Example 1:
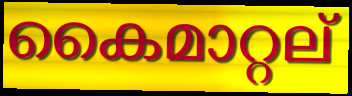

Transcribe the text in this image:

കൈമാറ്റല്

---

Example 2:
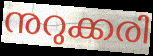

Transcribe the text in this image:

നുറുക്കരി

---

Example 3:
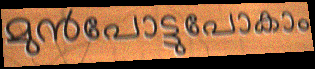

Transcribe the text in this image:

മുൻപോട്ടുപോകാം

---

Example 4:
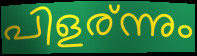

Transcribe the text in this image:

പിളര്ന്നും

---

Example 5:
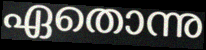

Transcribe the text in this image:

ഏതൊന്നു